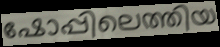
ഷോപ്പിലെത്തിയ